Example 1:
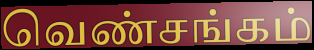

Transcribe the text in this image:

வெண்சங்கம்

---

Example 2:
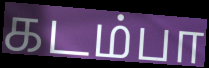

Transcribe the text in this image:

கடம்பா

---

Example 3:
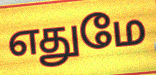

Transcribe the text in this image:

எதுமே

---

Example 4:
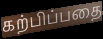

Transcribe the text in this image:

கற்பிப்பதை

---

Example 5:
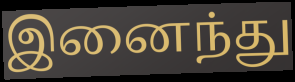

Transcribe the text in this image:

இனைந்து